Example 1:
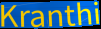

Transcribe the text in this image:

Kranthi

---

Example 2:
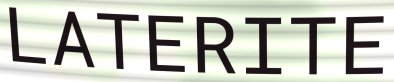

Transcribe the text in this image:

LATERITE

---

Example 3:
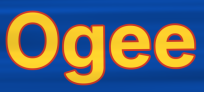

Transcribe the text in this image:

Ogee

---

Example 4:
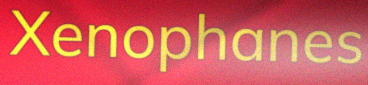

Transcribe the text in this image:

Xenophanes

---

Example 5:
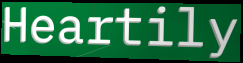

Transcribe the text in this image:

Heartily